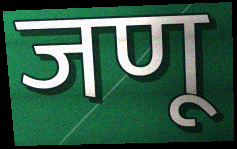
जणू